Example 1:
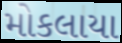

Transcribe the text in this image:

મોકલાયા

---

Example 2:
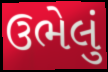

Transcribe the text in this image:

ઉભેલું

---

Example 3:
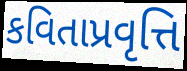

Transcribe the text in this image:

કવિતાપ્રવૃત્તિ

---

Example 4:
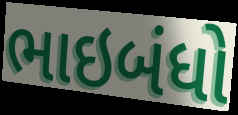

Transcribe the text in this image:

ભાઇબંધો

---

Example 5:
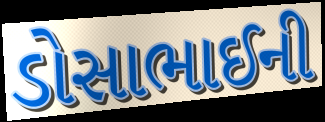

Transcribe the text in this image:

ડોસાભાઈની